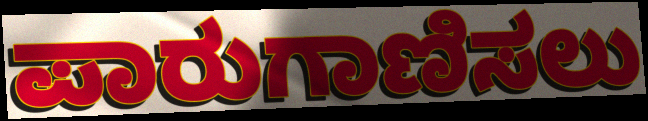
ಪಾರುಗಾಣಿಸಲು